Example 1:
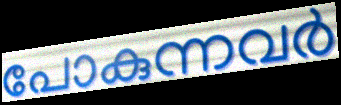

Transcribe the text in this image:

പോകുന്നവർ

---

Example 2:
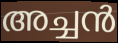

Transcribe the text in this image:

അച്ചൻ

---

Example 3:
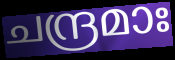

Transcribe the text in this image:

ചന്ദ്രമാഃ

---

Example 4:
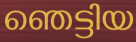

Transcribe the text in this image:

ഞെട്ടിയ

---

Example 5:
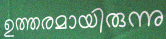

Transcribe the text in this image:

ഉത്തരമായിരുന്നു